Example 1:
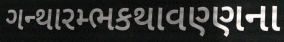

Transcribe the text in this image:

ગન્થારમ્ભકથાવણ્ણના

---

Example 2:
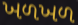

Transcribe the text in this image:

ખળખળ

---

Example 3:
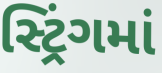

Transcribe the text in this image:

સ્ટ્રિંગમાં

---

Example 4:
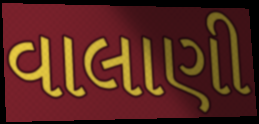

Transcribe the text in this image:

વાલાણી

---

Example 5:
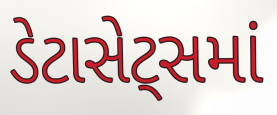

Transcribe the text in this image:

ડેટાસેટ્સમાં